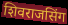
शिवराजसिंग